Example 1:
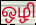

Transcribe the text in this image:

ஒழி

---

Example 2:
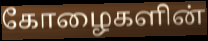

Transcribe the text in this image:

கோழைகளின்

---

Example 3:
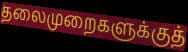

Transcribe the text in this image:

தலைமுறைகளுக்குத்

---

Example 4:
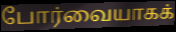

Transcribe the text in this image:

போர்வையாகக்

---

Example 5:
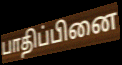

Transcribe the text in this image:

பாதிப்பினை